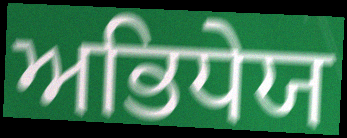
ਅਭਿਧੇਯ